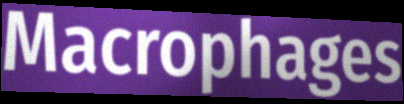
Macrophages